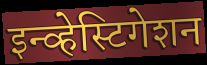
इन्व्हेस्टिगेशन